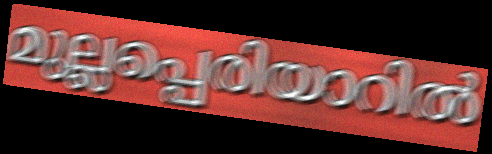
മുല്ലപ്പെരിയാറിൽ